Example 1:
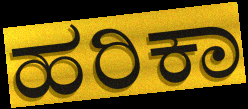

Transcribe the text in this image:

ಹರಿಕಾ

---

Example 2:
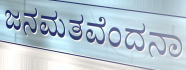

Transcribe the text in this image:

ಜನಮತವೆಂದನಾ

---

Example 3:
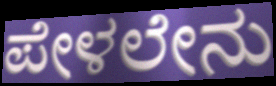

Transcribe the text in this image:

ಪೇಳಲೇನು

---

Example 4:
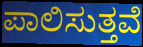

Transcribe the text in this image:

ಪಾಲಿಸುತ್ತವೆ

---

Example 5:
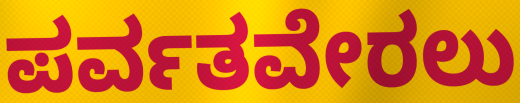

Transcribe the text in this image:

ಪರ್ವತವೇರಲು